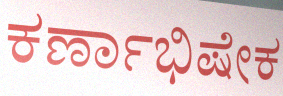
ಕರ್ಣಾಭಿಷೇಕ